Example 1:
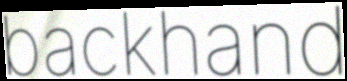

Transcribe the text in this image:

backhand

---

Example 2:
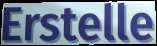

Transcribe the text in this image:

Erstelle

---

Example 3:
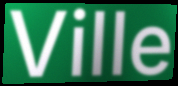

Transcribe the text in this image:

Ville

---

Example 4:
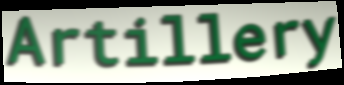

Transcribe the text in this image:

Artillery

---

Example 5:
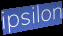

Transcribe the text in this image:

ipsilon